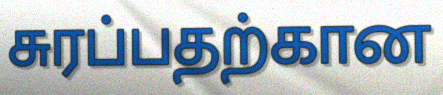
சுரப்பதற்கான